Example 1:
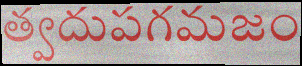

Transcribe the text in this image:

త్వదుపగమజం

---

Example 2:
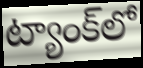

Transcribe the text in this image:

ట్యాంక్‌లో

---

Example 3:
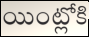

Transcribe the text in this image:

యింట్లోకి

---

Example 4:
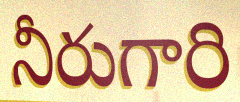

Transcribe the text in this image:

నీరుగారి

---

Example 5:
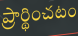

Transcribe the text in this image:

ప్రార్థించటం